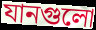
যানগুলো